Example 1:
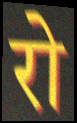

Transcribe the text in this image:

रो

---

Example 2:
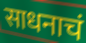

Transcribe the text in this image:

साधनाचं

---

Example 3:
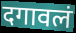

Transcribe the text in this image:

दगावलं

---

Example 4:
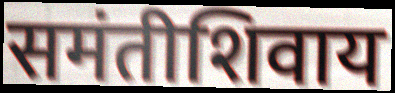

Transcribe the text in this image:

समंतीशिवाय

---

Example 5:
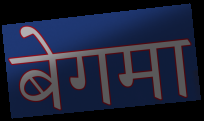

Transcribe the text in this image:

बेगमा